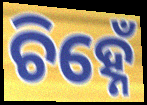
ଚିହ୍ନେଁ